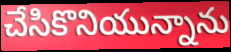
చేసికొనియున్నాను